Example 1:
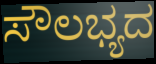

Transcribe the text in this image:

ಸೌಲಭ್ಯದ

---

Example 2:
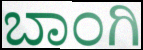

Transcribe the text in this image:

ಬಾಂಗಿ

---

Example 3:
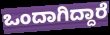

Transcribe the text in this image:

ಒಂದಾಗಿದ್ದಾರೆ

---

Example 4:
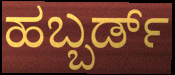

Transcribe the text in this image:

ಹಬ್ಬರ್ಡ್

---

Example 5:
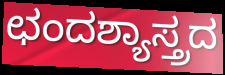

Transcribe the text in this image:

ಛಂದಶ್ಯಾಸ್ತ್ರದ